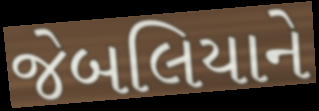
જેબલિયાને